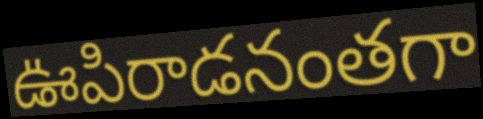
ఊపిరాడనంతగా